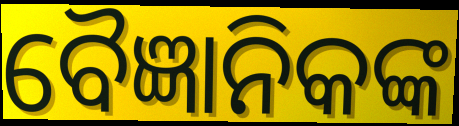
ବୈଜ୍ଞାନିକଙ୍କ